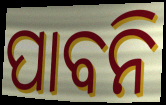
ପାବନି